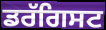
ਡਰੱਗਿਸਟ